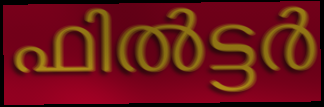
ഫിൽട്ടർ